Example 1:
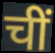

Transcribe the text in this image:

चीं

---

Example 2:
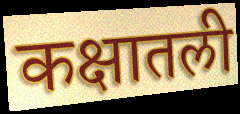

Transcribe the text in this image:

कक्षातली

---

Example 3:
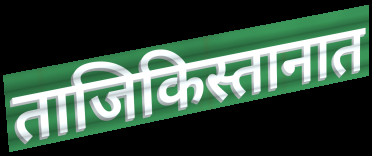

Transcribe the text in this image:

ताजिकिस्तानात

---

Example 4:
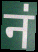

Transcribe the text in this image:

न॑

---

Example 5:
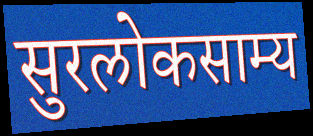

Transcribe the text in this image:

सुरलोकसाम्य